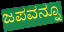
ಜಪವನ್ನೂ